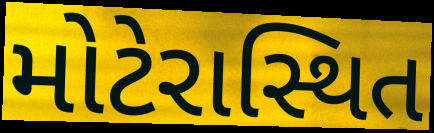
મોટેરાસ્થિત